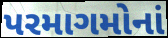
પરમાગમોનાં